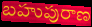
బహుపురాణ